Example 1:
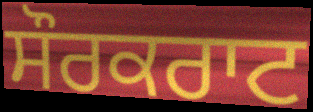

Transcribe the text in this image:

ਸੌਰਕਰਾਟ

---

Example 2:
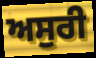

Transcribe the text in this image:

ਅਸੁਰੀ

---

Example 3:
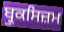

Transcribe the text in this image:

ਬ੍ਰੁਕਸਿਜ਼ਮ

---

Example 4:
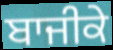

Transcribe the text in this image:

ਬਾਜੀਕੇ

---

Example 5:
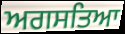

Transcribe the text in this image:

ਅਗਸਤਿਆ